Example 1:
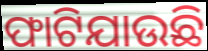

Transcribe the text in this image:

ଫାଟିଯାଉଛି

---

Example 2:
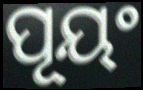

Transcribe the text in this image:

ପୂୟଂ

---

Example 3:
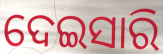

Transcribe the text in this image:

ଦେଇସାରି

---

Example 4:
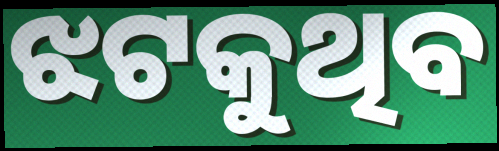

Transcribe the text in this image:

ଝଟକୁଥିବ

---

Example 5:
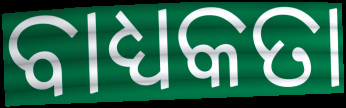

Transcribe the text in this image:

ବାଧ୍ୟକତା